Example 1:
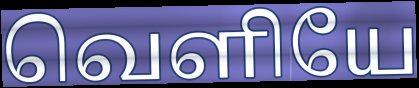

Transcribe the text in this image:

வெளியே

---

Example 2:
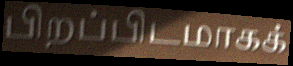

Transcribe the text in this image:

பிறப்பிடமாகக்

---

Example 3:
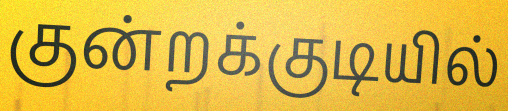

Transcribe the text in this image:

குன்றக்குடியில்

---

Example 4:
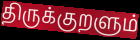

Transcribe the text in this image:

திருக்குறளும்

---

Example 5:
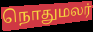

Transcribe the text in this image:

நொதுமலர்